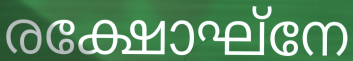
രക്ഷോഘ്നേ